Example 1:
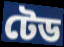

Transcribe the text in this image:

টেড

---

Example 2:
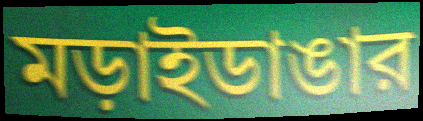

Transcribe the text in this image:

মড়াইডাঙার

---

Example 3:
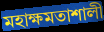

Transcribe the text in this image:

মহাক্ষমতাশালী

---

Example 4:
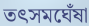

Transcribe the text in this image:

তৎসমঘেঁষা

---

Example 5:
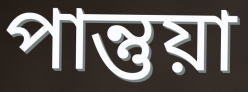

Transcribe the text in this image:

পান্তুয়া